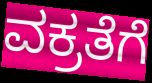
ವಕ್ರತೆಗೆ